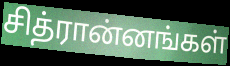
சித்ரான்னங்கள்